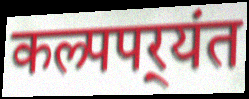
कल्पपर्यंत